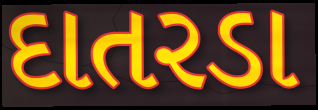
દાતરડા